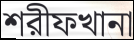
শরীফখানা